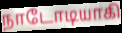
நாடோடியாகி